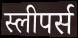
स्लीपर्स